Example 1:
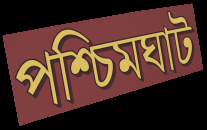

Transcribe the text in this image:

পশ্চিমঘাট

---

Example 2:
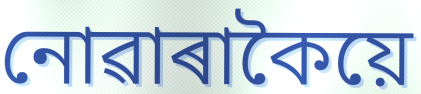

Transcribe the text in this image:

নোৱাৰাকৈয়ে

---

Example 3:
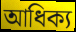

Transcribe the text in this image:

আধিক্য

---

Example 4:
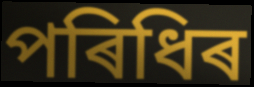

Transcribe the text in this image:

পৰিধিৰ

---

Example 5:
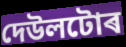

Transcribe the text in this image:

দেউলটোৰ